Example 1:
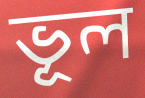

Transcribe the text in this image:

ভূল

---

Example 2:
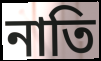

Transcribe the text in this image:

নাতি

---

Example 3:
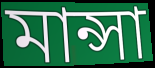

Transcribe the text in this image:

মান্সা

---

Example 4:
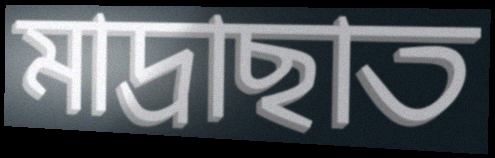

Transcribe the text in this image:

মাদ্ৰাছাত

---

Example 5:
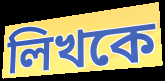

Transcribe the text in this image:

লিখকে